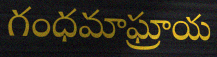
గంధమాఘ్రాయ